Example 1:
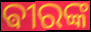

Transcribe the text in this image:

ଵୀରଙ୍କ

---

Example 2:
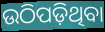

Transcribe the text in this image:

ଉଠିପଡ଼ିଥିବା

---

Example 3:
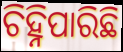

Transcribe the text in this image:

ଚିହ୍ନିପାରିଛି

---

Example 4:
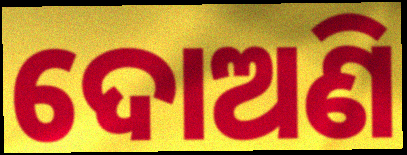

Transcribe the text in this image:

ଦୋଅଣି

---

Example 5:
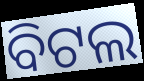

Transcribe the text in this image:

ବିଟଲ